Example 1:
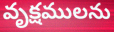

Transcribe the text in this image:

వృక్షములను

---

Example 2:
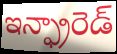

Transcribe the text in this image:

ఇన్ఫ్రారెడ్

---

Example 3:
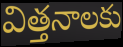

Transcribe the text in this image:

విత్తనాలకు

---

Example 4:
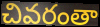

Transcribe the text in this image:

చివరంతా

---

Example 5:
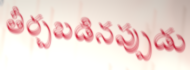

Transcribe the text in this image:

తీర్చబడినప్పుడు